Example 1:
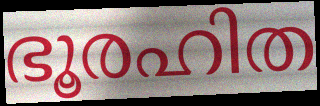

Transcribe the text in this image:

ഭൂരഹിത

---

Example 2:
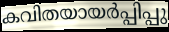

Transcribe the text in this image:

കവിതയായർപ്പിപ്പു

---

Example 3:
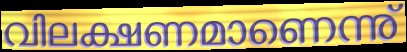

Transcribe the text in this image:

വിലക്ഷണമാണെന്നു്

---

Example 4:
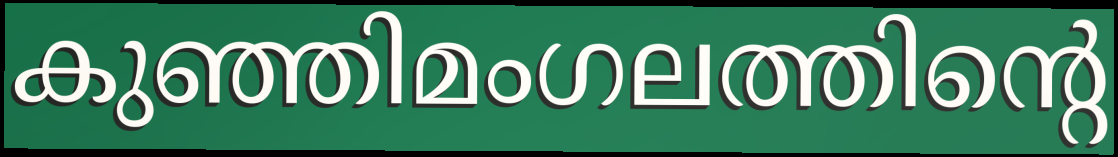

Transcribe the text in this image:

കുഞ്ഞിമംഗലത്തിന്റെ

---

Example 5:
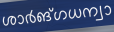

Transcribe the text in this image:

ശാർങ്ഗധന്വാ